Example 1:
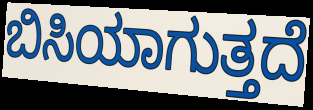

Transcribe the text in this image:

ಬಿಸಿಯಾಗುತ್ತದೆ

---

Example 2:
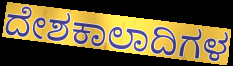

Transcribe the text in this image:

ದೇಶಕಾಲಾದಿಗಳ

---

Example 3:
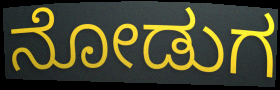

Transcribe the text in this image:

ನೋಡುಗ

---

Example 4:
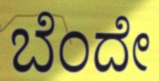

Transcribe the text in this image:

ಬೆಂದೇ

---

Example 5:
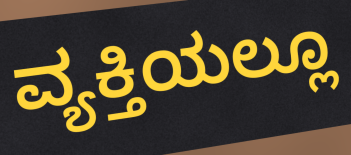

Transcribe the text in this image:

ವ್ಯಕ್ತಿಯಲ್ಲೂ